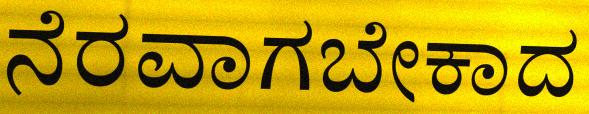
ನೆರವಾಗಬೇಕಾದ